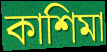
কাশিমা